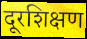
दूरशिक्षण